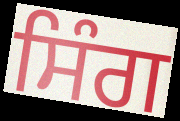
ਸਿੰਗ